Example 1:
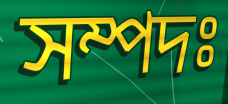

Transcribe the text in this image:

সম্পদঃ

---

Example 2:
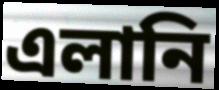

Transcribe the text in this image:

এলানি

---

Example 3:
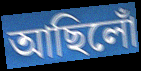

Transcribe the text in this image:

আছিলোঁ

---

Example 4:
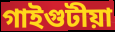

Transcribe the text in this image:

গাইগুটীয়া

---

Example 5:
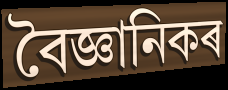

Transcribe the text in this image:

বৈজ্ঞানিকৰ